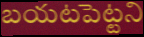
బయటపెట్టని